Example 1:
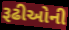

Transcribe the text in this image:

રૂઢીઓની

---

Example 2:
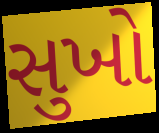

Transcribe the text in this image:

સુખો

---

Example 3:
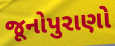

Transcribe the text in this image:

જૂનોપુરાણો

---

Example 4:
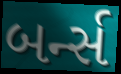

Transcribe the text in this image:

બર્ન્સ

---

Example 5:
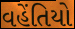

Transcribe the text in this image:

વહેંતિયો